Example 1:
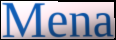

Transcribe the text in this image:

Mena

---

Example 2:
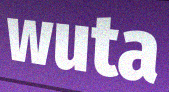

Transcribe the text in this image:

wuta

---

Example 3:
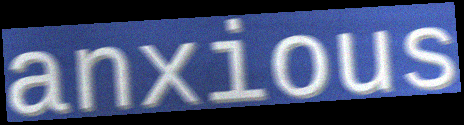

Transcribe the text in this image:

anxious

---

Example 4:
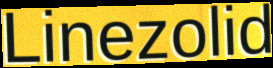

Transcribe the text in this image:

Linezolid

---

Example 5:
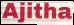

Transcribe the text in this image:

Ajitha